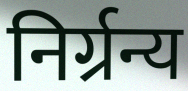
निर्ग्रन्य